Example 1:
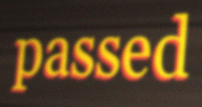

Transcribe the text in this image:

passed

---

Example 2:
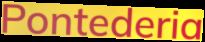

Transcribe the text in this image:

Pontederia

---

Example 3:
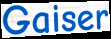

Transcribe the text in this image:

Gaiser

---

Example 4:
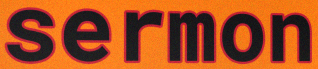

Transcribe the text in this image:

sermon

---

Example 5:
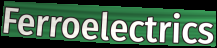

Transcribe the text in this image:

Ferroelectrics